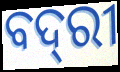
ବଦ୍‌ରୀ